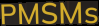
PMSMs